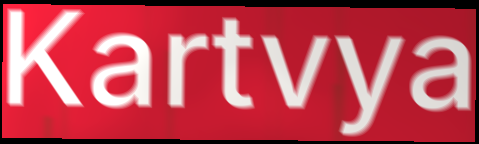
Kartvya